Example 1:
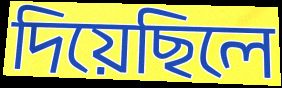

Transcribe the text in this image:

দিয়েছিলে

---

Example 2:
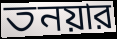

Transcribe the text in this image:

তনয়ার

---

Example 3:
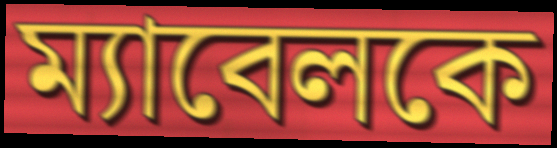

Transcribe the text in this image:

ম্যাবেলকে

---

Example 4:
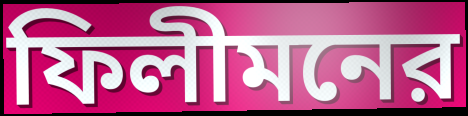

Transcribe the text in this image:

ফিলীমনের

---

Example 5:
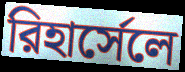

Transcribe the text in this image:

রিহার্সেলে